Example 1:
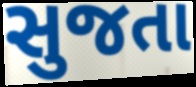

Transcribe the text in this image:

સુજતા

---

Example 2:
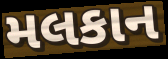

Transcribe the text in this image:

મલકાન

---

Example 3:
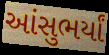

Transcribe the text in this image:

આંસુભર્યાં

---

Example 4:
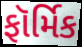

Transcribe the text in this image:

ફૉર્મિક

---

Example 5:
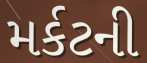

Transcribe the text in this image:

મર્કટની